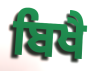
ਬਿਖੈ